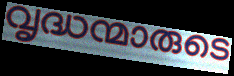
വൃദ്ധന്മാരുടെ